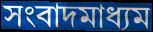
সংবাদমাধ্যম